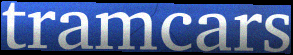
tramcars